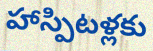
హాస్పిటళ్లకు